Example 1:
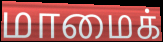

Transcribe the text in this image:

மாமைக்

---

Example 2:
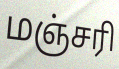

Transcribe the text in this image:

மஞ்சரி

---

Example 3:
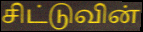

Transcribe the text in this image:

சிட்டுவின்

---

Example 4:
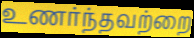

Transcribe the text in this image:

உணர்ந்தவற்றை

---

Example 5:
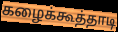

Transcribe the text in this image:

கழைக்கூத்தாடி